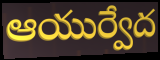
ఆయుర్వేద